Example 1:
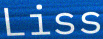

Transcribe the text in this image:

Liss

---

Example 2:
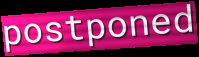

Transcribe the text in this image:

postponed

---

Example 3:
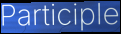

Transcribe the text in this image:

Participle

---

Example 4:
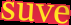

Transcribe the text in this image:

suve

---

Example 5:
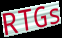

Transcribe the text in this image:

RTGs